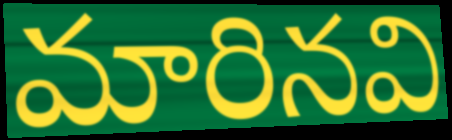
మారినవి